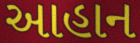
આહાન